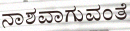
ನಾಶವಾಗುವಂತೆ